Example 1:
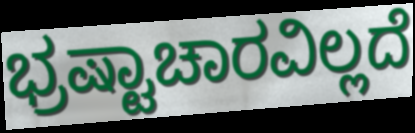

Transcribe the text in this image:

ಭ್ರಷ್ಟಾಚಾರವಿಲ್ಲದೆ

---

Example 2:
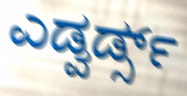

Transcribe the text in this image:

ಎಡ್ವರ್ಡ್ಸ್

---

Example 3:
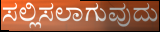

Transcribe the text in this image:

ಸಲ್ಲಿಸಲಾಗುವುದು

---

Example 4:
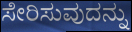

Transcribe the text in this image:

ಸೇರಿಸುವುದನ್ನು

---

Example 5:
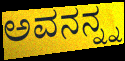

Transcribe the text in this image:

ಅವನನ್ನ್ನ